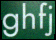
ghfj